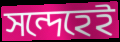
সন্দেহেই